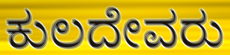
ಕುಲದೇವರು